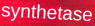
synthetase